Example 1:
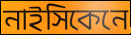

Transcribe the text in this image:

নাইসিকেনে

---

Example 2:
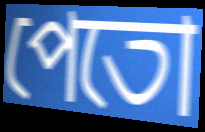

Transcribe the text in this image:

পেতো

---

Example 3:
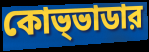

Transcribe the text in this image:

কোভ্ভাডার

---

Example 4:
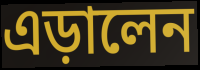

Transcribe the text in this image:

এড়ালেন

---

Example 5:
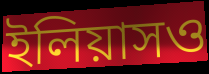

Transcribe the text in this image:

ইলিয়াসও